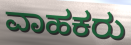
ವಾಹಕರು